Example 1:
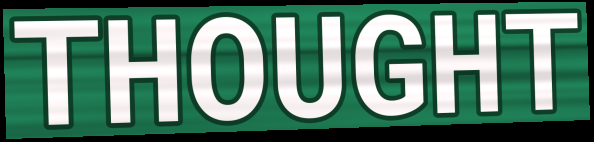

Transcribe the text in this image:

THOUGHT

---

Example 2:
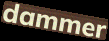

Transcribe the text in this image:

dammer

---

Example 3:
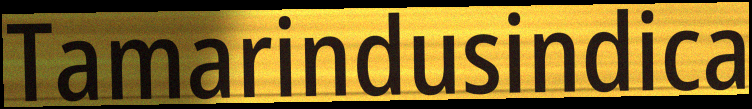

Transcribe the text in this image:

Tamarindusindica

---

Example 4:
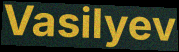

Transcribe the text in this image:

Vasilyev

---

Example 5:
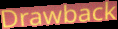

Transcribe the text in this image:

Drawback